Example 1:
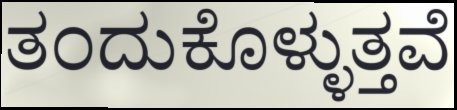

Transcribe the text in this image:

ತಂದುಕೊಳ್ಳುತ್ತವೆ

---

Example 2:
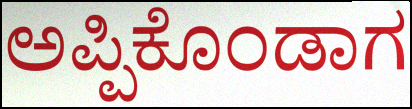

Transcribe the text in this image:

ಅಪ್ಪಿಕೊಂಡಾಗ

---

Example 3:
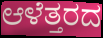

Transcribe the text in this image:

ಆಳೆತ್ತರದ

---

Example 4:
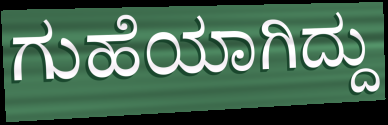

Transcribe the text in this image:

ಗುಹೆಯಾಗಿದ್ದು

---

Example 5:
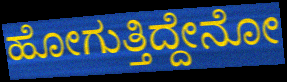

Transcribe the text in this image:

ಹೋಗುತ್ತಿದ್ದೇನೋ